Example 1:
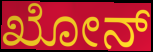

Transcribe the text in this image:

ಖೋನ್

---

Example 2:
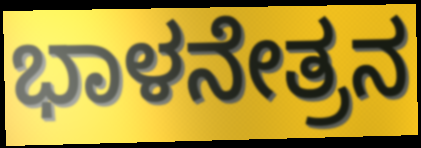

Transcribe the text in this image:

ಭಾಳನೇತ್ರನ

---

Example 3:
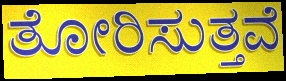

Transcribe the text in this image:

ತೋರಿಸುತ್ತವೆ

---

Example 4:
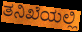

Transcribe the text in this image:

ತನಿಖೆಯಲ್ಲಿ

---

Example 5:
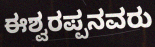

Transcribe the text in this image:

ಈಶ್ವರಪ್ಪನವರು